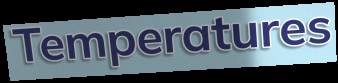
Temperatures